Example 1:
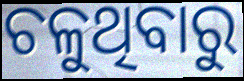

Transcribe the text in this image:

ଚଳୁଥିବାରୁ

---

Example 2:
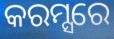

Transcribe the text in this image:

କରମ୍ସରେ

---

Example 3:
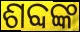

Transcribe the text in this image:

ଶବ୍ଦଙ୍କ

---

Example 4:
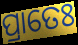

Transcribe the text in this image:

ପ୍ରାତେଃ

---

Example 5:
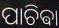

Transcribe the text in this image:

ପାଚିଵା